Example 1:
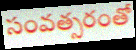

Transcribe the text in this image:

సంవత్సరంతో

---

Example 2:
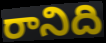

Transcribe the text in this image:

రానిది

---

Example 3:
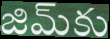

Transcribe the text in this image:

జిమ్‌కు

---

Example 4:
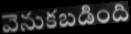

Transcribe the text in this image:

వెనుకబడింది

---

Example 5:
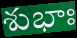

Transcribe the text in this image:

శుభాః